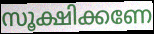
സൂക്ഷിക്കണേ